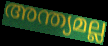
അന്ത്യമല്ല